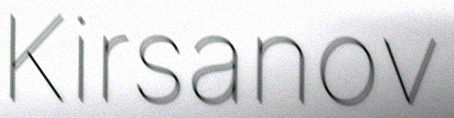
Kirsanov